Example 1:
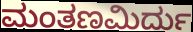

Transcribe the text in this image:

ಮಂತಣಮಿರ್ದು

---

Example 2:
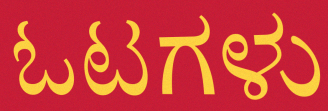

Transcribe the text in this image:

ಓಟಗಳು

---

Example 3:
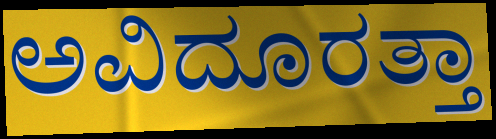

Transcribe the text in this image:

ಅವಿದೂರತ್ತಾ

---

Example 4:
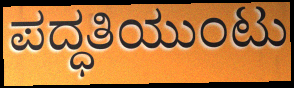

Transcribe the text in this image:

ಪದ್ಧತಿಯುಂಟು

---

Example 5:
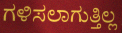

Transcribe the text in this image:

ಗಳಿಸಲಾಗುತ್ತಿಲ್ಲ